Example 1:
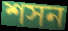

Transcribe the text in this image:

শসন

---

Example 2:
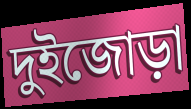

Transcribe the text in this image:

দুইজোড়া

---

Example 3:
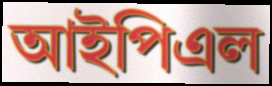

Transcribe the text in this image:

আইপিএল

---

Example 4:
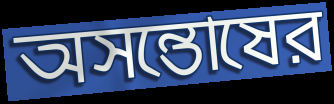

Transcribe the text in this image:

অসন্তোষের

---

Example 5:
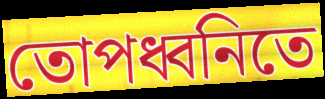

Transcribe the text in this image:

তোপধ্বনিতে